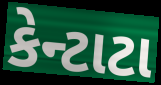
કેન્ટાટા